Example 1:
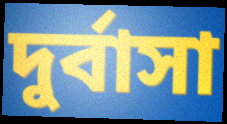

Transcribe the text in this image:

দুর্বাসা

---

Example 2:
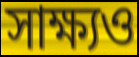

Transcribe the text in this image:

সাক্ষ্যও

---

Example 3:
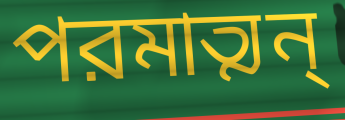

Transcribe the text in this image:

পরমাত্মন্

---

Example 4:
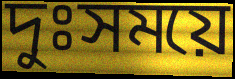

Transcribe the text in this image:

দুঃসময়ে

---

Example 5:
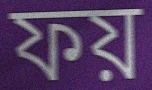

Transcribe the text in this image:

ফয়